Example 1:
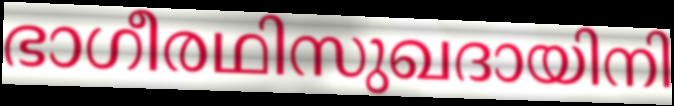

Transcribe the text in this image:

ഭാഗീരഥിസുഖദായിനി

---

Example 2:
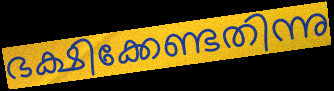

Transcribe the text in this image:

ഭക്ഷിക്കേണ്ടതിന്നു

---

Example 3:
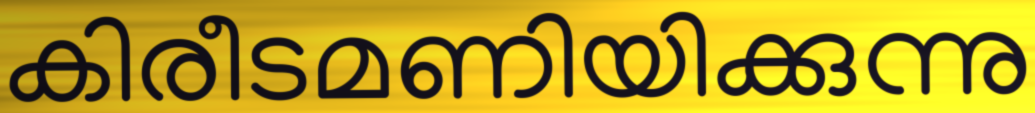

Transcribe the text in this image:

കിരീടമണിയിക്കുന്നു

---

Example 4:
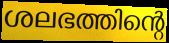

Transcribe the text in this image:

ശലഭത്തിന്റെ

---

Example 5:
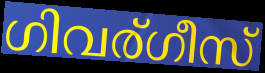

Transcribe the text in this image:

ഗിവര്ഗീസ്